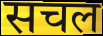
सचल